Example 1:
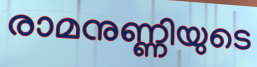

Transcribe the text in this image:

രാമനുണ്ണിയുടെ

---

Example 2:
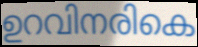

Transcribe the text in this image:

ഉറവിനരികെ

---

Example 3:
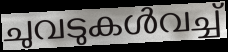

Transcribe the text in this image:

ചുവടുകൾവച്ച്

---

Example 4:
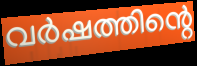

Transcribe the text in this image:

വർഷത്തിന്റെ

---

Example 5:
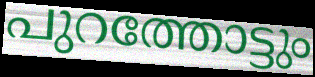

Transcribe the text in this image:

പുറത്തോട്ടും